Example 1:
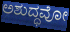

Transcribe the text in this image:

ಅಶುದ್ಧವೋ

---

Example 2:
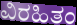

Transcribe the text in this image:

ವಿರಹಿತಂ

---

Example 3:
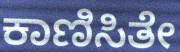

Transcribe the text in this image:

ಕಾಣಿಸಿತೇ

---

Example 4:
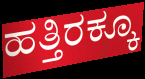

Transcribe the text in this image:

ಹತ್ತಿರಕ್ಕೂ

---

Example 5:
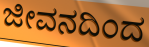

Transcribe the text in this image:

ಜೀವನದಿಂದ